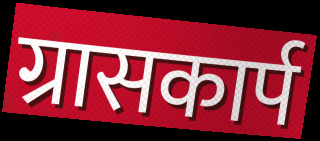
ग्रासकार्प